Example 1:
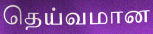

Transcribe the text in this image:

தெய்வமான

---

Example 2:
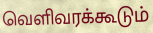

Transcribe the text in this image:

வெளிவரக்கூடும்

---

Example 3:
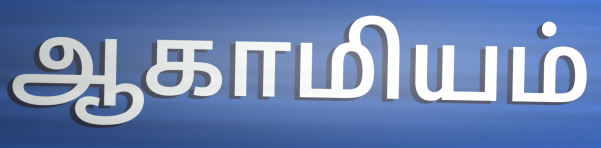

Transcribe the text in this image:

ஆகாமியம்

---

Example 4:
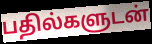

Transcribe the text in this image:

பதில்களுடன்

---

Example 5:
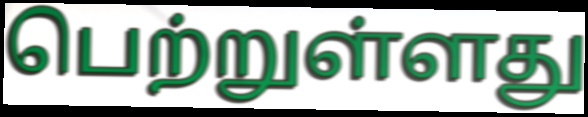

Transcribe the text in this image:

பெற்றுள்ளது